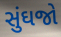
સુંઘજો